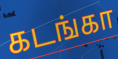
கடங்கா